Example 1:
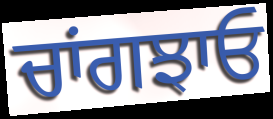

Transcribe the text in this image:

ਚਾਂਗਝਾਓ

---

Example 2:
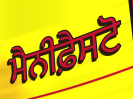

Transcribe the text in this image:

ਮੈਨੀਫ਼ੈਸਟੋ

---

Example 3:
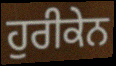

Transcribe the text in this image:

ਹੁਰੀਕੇਨ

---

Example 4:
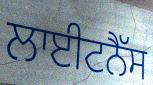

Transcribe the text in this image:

ਲਾਈਟਨੈੱਸ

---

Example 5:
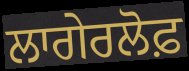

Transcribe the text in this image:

ਲਾਗੇਰਲੋਫ਼